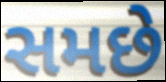
સમછે